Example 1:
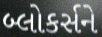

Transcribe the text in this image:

બ્લોકર્સને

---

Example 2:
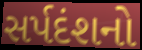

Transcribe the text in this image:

સર્પદંશનો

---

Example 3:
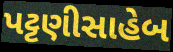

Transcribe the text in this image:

પટ્ટણીસાહેબ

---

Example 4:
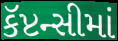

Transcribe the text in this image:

કૅપ્ટન્સીમાં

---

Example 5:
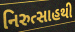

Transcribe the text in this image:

નિરુત્સાહથી